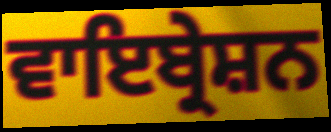
ਵਾਇਬ੍ਰੇਸ਼ਨ